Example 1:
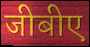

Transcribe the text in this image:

जीबीए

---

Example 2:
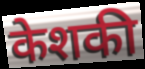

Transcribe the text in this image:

केशकी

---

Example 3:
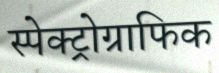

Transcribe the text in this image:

स्पेक्ट्रोग्राफिक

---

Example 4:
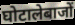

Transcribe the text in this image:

घोटालेबाजों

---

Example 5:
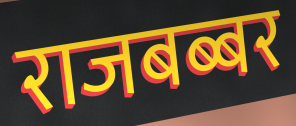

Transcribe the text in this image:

राजबब्बर